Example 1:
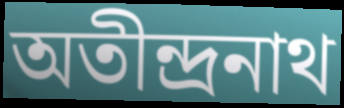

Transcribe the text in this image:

অতীন্দ্রনাথ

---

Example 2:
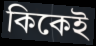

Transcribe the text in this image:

কিকেই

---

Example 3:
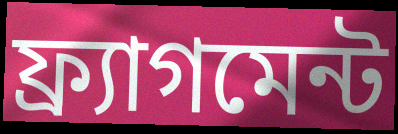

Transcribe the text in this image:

ফ্র্যাগমেন্ট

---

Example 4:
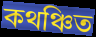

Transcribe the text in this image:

কথঞ্চিত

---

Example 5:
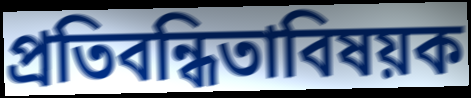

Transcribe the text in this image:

প্রতিবন্ধিতাবিষয়ক